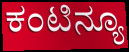
ಕಂಟಿನ್ಯೂ